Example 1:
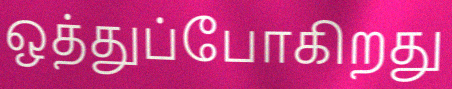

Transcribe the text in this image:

ஒத்துப்போகிறது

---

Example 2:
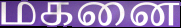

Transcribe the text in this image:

மகனை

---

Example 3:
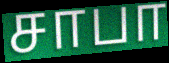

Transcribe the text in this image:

சாபா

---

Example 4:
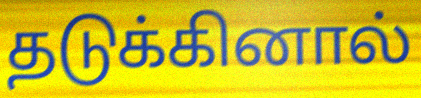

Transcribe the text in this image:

தடுக்கினால்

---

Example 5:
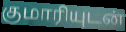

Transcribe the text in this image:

குமாரியுடன்